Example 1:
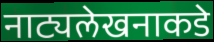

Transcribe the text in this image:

नाट्यलेखनाकडे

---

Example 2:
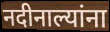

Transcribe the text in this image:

नदीनाल्यांना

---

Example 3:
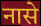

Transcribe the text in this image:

नासे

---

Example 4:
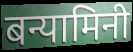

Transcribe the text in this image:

बन्यामिनी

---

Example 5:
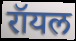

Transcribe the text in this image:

रॉयल